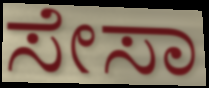
ಸೇಸಾ